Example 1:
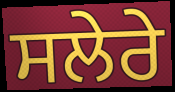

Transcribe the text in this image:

ਸਲੇਰੇ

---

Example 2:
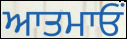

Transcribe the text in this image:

ਆਤਮਾਓਂ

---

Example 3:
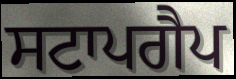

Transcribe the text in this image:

ਸਟਾਪਗੈਪ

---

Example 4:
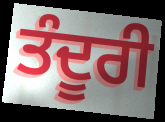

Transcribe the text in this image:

ਤੰਦੂਰੀ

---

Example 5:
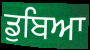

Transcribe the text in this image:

ਡੁਬਿਆ